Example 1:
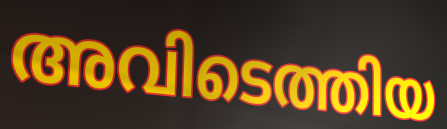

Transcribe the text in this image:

അവിടെത്തിയ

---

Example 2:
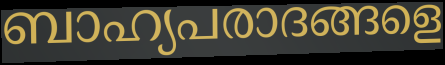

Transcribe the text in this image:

ബാഹ്യപരാദങ്ങളെ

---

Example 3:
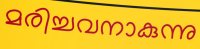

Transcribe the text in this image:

മരിച്ചവനാകുന്നു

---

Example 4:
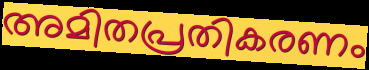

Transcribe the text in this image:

അമിതപ്രതികരണം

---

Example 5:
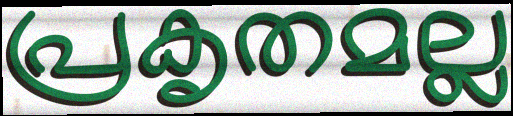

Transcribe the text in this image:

പ്രകൃതമല്ല